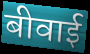
बीवाई